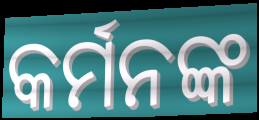
କର୍ମନଙ୍କ